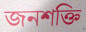
জনশক্তি